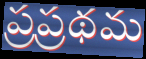
ప్రప్రథమ